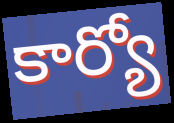
కార్యో